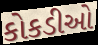
કોકડીઓ